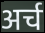
अर्च